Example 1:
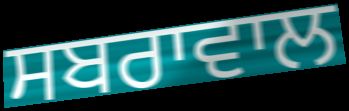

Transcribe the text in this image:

ਸਬਰਾਵਾਲ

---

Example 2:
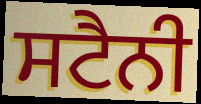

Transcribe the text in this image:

ਸਟੈਨੀ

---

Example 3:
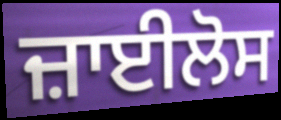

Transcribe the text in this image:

ਜ਼ਾਈਲੋਸ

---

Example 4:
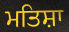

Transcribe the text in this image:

ਮਤਿਸ਼ਾ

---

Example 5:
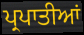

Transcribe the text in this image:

ਪ੍ਰਪਾਤੀਆਂ